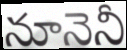
నూనెనీ